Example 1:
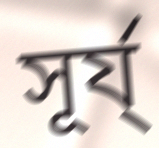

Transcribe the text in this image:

সূৰ্য্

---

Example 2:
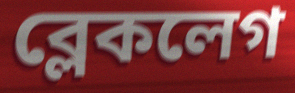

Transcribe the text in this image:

ব্লেকলেগ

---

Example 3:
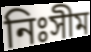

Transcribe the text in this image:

নিঃসীম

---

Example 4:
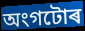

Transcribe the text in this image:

অংগটোৰ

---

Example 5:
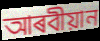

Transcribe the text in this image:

আৰবীয়ান